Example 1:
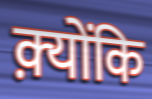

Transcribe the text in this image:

क़्योंकि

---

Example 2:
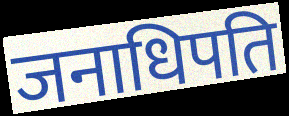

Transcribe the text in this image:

जनाधिपति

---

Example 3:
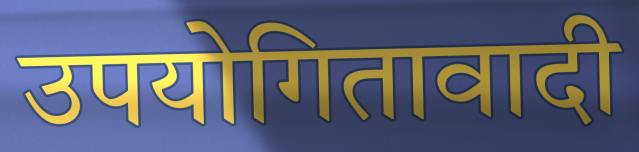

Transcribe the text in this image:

उपयोगितावादी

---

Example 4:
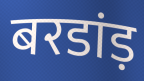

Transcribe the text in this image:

बरडांड़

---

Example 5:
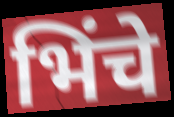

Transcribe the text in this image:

भिंचे